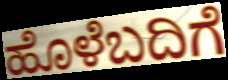
ಹೊಳೆಬದಿಗೆ